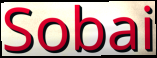
Sobai